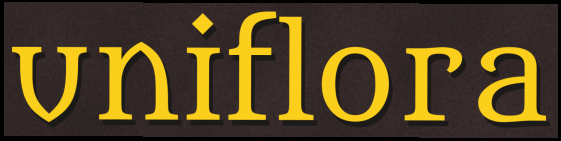
uniflora